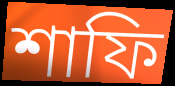
শাফি